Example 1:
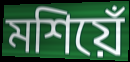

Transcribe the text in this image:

মশিয়েঁ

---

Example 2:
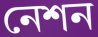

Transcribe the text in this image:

নেশন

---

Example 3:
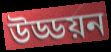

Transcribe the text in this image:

উড্ডয়ন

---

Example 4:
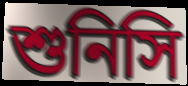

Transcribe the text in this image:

শুনিসি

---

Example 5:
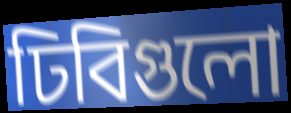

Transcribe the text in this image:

ঢিবিগুলো